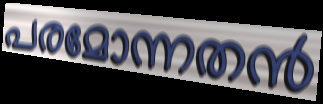
പരമോന്നതൻ